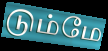
டும்மே